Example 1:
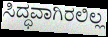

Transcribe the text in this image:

ಸಿದ್ಧವಾಗಿರಲಿಲ್ಲ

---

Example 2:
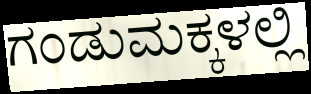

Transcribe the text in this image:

ಗಂಡುಮಕ್ಕಳಲ್ಲಿ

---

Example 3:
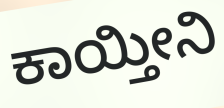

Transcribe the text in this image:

ಕಾಯ್ತೀನಿ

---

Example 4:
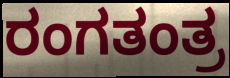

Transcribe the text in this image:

ರಂಗತಂತ್ರ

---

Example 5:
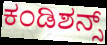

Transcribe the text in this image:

ಕಂಡಿಶನ್ಸ್